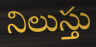
నిలుస్తు